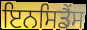
ਇਨਸਿਡੈਂਸ